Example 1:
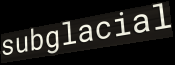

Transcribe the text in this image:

subglacial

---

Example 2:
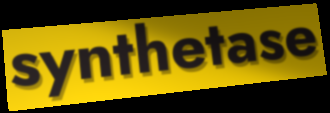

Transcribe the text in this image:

synthetase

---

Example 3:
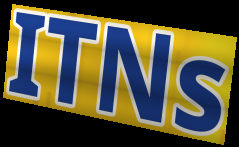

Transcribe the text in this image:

ITNs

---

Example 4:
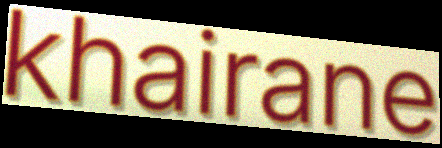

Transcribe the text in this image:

khairane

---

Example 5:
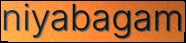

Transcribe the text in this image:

niyabagam